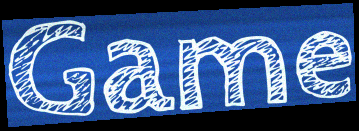
Game